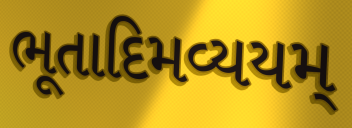
ભૂતાદિમવ્યયમ્